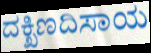
ದಕ್ಖಿಣದಿಸಾಯ